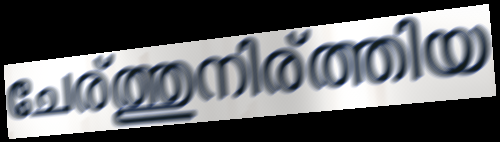
ചേര്ത്തുനിര്ത്തിയ